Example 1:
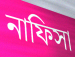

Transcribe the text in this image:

নাফিসা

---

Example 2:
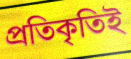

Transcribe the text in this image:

প্রতিকৃতিই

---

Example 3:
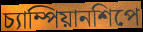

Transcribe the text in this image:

চ্যাম্পিয়ানশিপে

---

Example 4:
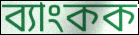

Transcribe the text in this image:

ব্যাংকক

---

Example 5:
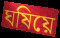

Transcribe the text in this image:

ঘষিয়ে